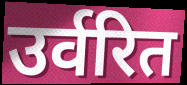
उर्वरित